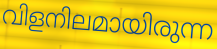
വിളനിലമായിരുന്ന